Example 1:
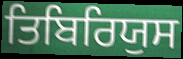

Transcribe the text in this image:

ਤਿਬਿਰਿਯੁਸ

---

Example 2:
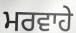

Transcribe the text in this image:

ਮਰਵਾਹੇ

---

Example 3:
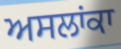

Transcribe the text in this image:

ਅਸਲਾਂਕਾ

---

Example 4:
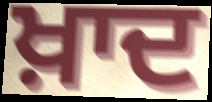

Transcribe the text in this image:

ਖ਼ਾਦ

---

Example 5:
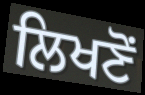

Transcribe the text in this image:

ਲਿਖਣੋਂ